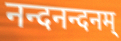
नन्दनन्दनम्